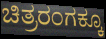
ಚಿತ್ರರಂಗಕ್ಕೂ